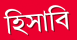
হিসাবি